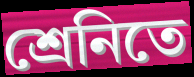
শ্রেনিতে